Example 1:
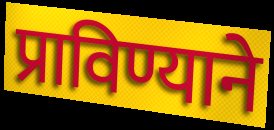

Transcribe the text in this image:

प्राविण्याने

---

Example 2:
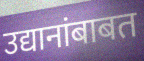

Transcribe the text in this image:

उद्यानांबाबत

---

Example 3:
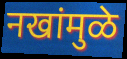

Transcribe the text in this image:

नखांमुळे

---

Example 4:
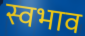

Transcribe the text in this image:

स्वभाव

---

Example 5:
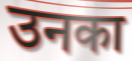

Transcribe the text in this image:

उनका